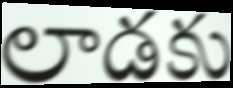
లాడకు